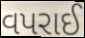
વપરાઈ